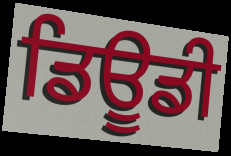
ਡਿਊਡੀ